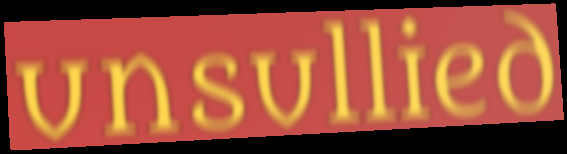
unsullied